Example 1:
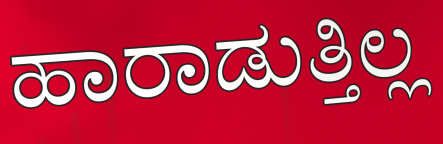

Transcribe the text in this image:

ಹಾರಾಡುತ್ತಿಲ್ಲ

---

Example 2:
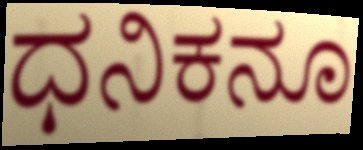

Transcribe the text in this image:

ಧನಿಕನೂ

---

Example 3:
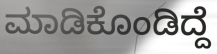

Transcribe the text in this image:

ಮಾಡಿಕೊಂಡಿದ್ದೆ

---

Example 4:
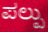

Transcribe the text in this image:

ಪಲ್ಪು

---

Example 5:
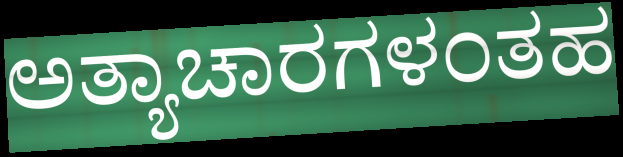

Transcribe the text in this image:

ಅತ್ಯಾಚಾರಗಳಂತಹ